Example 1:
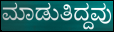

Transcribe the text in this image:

ಮಾಡುತಿದ್ದವು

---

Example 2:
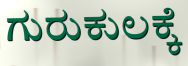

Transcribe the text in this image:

ಗುರುಕುಲಕ್ಕೆ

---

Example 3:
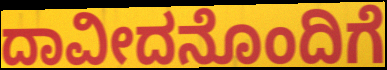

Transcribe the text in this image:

ದಾವೀದನೊಂದಿಗೆ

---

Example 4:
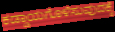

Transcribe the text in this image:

ಕಡ್ಡಾಯಗೊಳಿಸುವುದಕ್ಕೆ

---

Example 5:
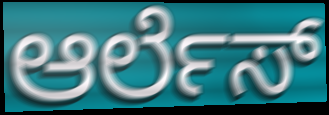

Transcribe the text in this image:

ಆರ್ಲೆಸ್